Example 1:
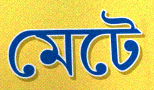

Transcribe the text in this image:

মেটে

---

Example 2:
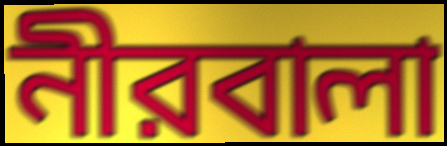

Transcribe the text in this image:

নীরবালা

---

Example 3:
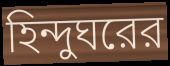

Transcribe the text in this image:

হিন্দুঘরের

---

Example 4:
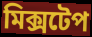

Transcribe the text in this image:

মিক্সটেপ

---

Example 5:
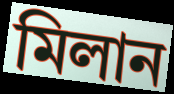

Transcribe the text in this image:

মিলান